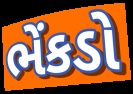
ભેંકડો